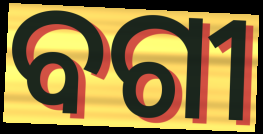
ବଗୀ